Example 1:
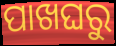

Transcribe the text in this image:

ପାଖଘରୁ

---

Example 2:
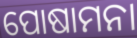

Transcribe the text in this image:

ପୋଷାମନା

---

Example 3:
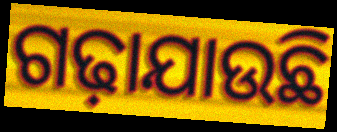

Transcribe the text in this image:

ଗଢ଼ାଯାଉଛି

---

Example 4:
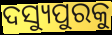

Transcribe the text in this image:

ଦସ୍ୟୁପୁରକୁ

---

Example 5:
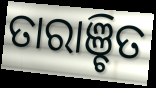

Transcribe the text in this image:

ତାରାଞ୍ଚିତ